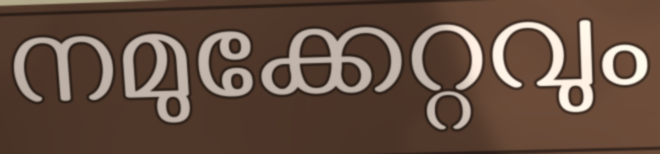
നമുക്കേറ്റവും